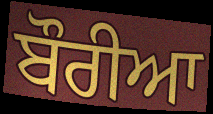
ਬੌਰੀਆ